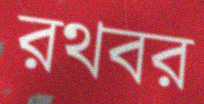
রথবর